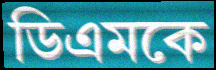
ডিএমকে